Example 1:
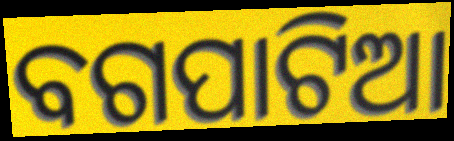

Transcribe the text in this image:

ବଗପାଟିଆ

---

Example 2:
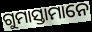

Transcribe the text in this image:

ଗୁମାସ୍ତାମାନେ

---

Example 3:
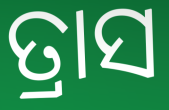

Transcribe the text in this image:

ତ୍ରାସ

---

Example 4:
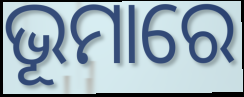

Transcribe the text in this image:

ଭୂମାରେ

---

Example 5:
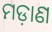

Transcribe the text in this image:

ମଡ଼ାଣ